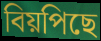
বিয়পিছে